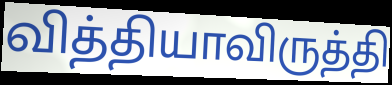
வித்தியாவிருத்தி